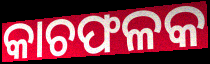
କାଚଫଳକ